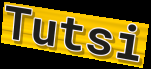
Tutsi